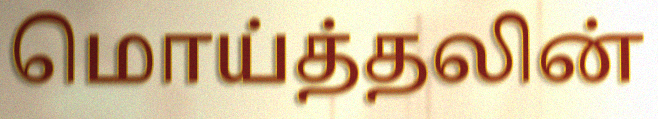
மொய்த்தலின்